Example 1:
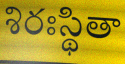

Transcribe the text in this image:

శిరఃస్థితా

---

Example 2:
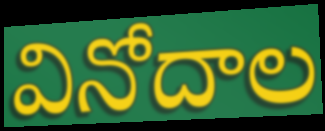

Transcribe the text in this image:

వినోదాల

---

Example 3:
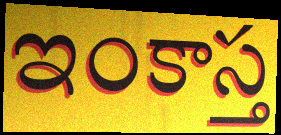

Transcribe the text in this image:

ఇంకాస్త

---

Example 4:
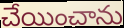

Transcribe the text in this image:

చేయించాను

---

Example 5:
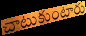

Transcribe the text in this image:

చాటుకుంటారు